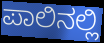
ಪಾಲಿನಲ್ಲಿ